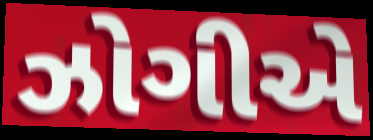
ઝોગીએ